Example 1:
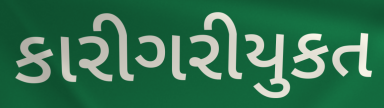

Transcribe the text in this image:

કારીગરીયુકત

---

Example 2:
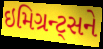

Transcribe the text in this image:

ઇમિગ્રન્ટ્સને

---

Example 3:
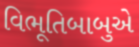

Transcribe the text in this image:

વિભૂતિબાબુએ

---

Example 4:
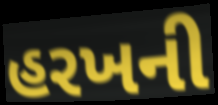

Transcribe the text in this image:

હરખની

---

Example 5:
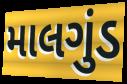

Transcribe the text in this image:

માલગુંડ